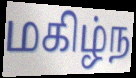
மகிழ்ந